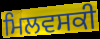
ਮਿਲਵਸਕੀ